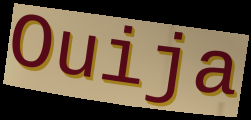
Ouija